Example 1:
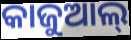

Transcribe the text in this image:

କାଜୁଆଲ୍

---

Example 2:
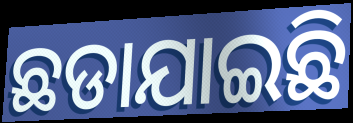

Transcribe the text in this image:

ଛଡାଯାଇଛି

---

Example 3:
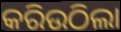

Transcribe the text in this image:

କରିଉଠିଲା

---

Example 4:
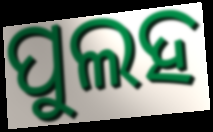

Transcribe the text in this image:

ପୁଲହ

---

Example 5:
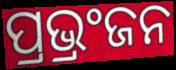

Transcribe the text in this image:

ପ୍ରଭ୍ରଂଜନ